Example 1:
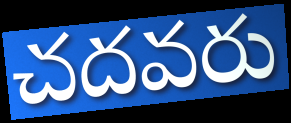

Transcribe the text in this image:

చదవరు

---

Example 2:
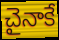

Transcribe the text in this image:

చైనాకే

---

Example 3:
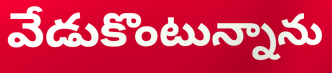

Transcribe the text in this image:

వేడుకొంటున్నాను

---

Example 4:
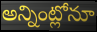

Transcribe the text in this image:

అన్నింట్లోనూ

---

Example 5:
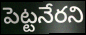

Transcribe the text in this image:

పెట్టనేరని